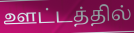
ஊட்டத்தில்